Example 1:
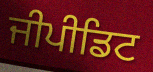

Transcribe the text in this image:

ਜੀਪੀਡਿਟ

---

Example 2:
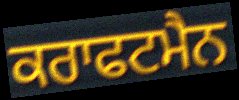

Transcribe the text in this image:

ਕਰਾਫਟਮੈਨ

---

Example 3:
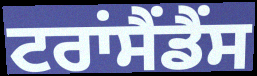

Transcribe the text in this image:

ਟਰਾਂਸੈਂਡੈਂਸ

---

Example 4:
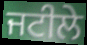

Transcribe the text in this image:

ਜਟੀਲੇ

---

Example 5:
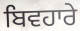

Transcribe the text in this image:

ਬਿਵਹਾਰੇ